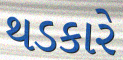
થડકારે